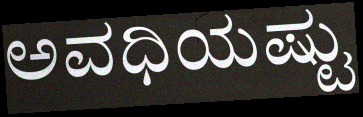
ಅವಧಿಯಷ್ಟು